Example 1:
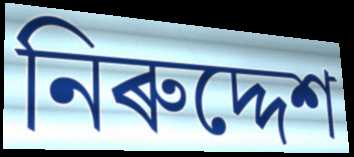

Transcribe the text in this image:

নিৰুদ্দেশ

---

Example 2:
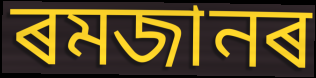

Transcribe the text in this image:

ৰমজানৰ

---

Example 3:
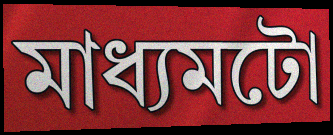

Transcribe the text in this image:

মাধ্যমটো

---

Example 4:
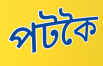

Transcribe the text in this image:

পটকৈ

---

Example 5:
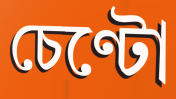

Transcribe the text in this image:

চেণ্টো